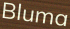
Bluma